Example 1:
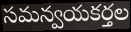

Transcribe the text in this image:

సమన్వయకర్తల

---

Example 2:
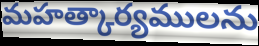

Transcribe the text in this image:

మహత్కార్యములను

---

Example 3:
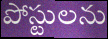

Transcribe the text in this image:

పోస్టులను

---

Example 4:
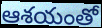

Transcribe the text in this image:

ఆశయంతో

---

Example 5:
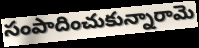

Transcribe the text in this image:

సంపాదించుకున్నారామె